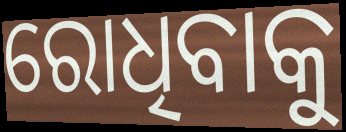
ରୋଧିବାକୁ